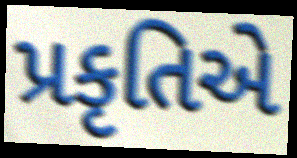
પ્રકૃતિએ